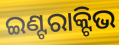
ଇଣ୍ଟରାକ୍ଟିଭ